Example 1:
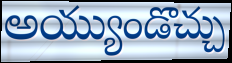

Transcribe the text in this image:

అయ్యుండొచ్చు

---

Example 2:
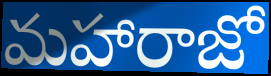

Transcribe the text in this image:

మహారాజో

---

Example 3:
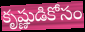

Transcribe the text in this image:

కృష్ణుడికోసం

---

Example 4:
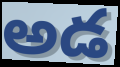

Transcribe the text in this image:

అడ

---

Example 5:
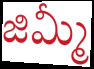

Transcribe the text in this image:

జిమ్మీ